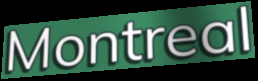
Montreal